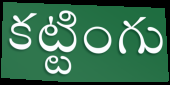
కట్టింగు